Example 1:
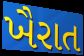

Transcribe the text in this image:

ખૈરાત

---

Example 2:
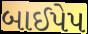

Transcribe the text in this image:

બાઈપેપ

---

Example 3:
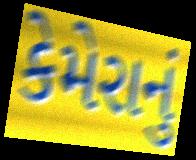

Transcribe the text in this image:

કેમેરાનું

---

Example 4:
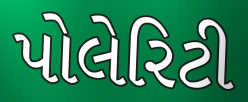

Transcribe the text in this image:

પોલેરિટી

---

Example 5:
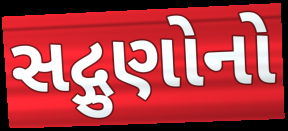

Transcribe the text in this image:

સદ્ગુણોનો